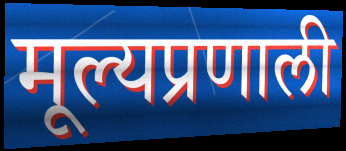
मूल्यप्रणाली